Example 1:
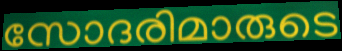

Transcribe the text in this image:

സോദരിമാരുടെ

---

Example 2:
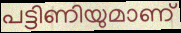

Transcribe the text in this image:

പട്ടിണിയുമാണ്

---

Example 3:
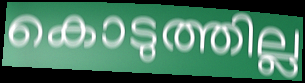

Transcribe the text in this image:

കൊടുത്തില്ല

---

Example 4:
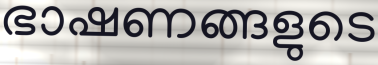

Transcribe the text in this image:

ഭാഷണങ്ങളുടെ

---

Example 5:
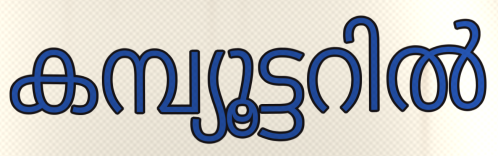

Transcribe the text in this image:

കമ്പ്യൂട്ടറിൽ